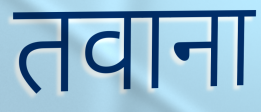
तवाना